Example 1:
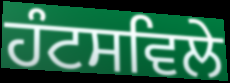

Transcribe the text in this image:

ਹੰਟਸਵਿਲੇ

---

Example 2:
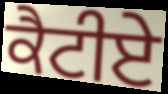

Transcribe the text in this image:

ਕੈਟੀਏ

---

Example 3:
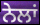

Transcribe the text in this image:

ਨੇਲਾਂ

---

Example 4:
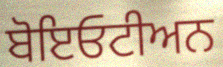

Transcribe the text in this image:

ਬੋਇਓਟੀਅਨ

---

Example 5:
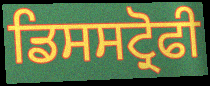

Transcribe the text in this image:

ਡਿਸਸਟ੍ਰੋਫੀ